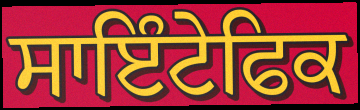
ਸਾਇੰਟੇਫਿਕ